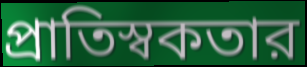
প্রাতিস্বকতার